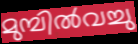
മുമ്പിൽവച്ചു